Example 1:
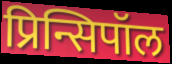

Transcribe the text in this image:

प्रिन्सिपॉल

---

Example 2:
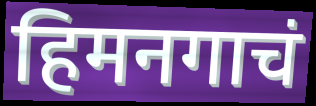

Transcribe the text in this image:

हिमनगाचं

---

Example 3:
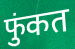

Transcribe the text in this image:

फुंकत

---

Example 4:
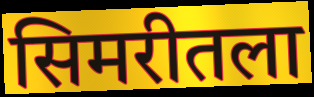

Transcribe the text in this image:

सिमरीतला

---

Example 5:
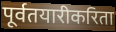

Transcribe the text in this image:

पूर्वतयारीकरिता